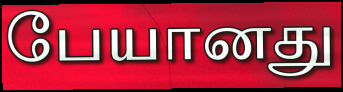
பேயானது